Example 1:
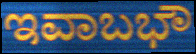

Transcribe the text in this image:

ಇವಾಬಭೌ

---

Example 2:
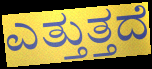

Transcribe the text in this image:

ಎತ್ತುತ್ತದೆ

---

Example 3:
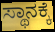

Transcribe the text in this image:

ಸ್ಥಾನಕ್ಕೆ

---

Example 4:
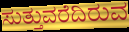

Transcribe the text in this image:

ಸುತ್ತುವರೆದಿರುವ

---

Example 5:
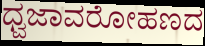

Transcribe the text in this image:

ಧ್ವಜಾವರೋಹಣದ